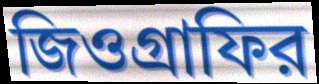
জিওগ্রাফির